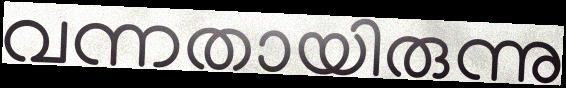
വന്നതായിരുന്നു